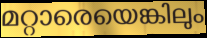
മറ്റാരെയെങ്കിലും